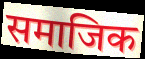
समाजिक